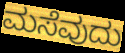
ಮಸೆವುದು